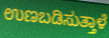
ಉಣಬಡಿಸುತ್ತಾಳೆ